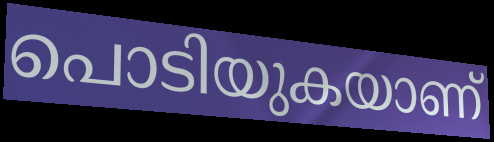
പൊടിയുകയാണ്